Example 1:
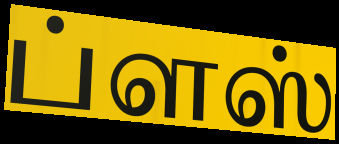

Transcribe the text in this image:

ப்ளஸ்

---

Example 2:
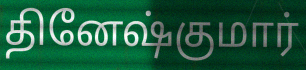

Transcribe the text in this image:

தினேஷ்குமார்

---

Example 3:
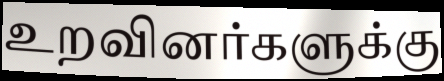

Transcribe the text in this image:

உறவினர்களுக்கு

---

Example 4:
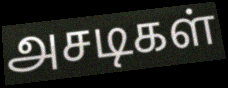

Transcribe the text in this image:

அசடிகள்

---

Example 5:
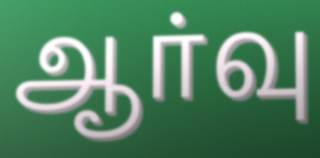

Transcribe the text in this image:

ஆர்வு